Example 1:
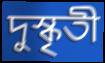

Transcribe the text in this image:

দুস্কৃতী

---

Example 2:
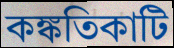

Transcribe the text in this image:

কঙ্কতিকাটি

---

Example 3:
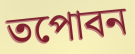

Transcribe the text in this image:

তপোবন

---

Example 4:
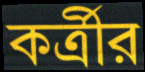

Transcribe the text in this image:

কর্ত্রীর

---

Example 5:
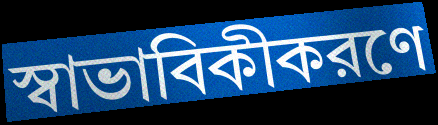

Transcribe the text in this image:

স্বাভাবিকীকরণে